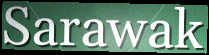
Sarawak